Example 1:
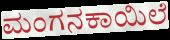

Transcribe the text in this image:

ಮಂಗನಕಾಯಿಲೆ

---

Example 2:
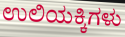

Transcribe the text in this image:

ಉಲಿಯಕ್ಕಿಗಳು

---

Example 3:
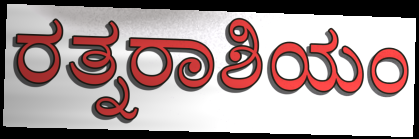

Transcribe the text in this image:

ರತ್ನರಾಶಿಯಂ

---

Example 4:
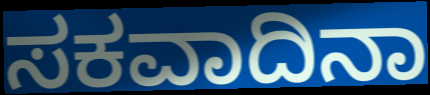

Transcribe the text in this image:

ಸಕವಾದಿನಾ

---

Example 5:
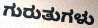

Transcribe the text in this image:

ಗುರುತುಗಳು